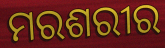
ମରଶରୀର